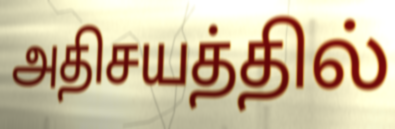
அதிசயத்தில்